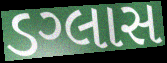
ડગ્લાસ